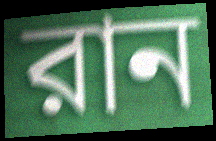
রান